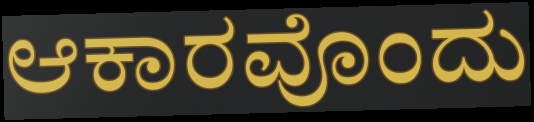
ಆಕಾರವೊಂದು